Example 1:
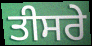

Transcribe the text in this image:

ਤੀਸਰੇ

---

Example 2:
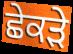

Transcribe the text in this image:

ਛੇਕੜੇ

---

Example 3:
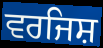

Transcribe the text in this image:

ਵਰਜਿਸ਼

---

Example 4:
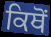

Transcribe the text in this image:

ਕਿਥੋਂ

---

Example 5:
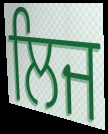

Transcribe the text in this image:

ਲਿਜ